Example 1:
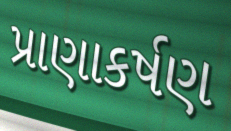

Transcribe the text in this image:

પ્રાણાકર્ષણ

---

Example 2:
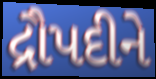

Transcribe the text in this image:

દ્રૌપદીને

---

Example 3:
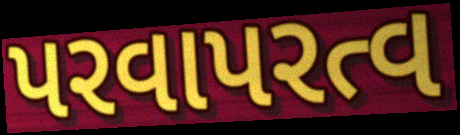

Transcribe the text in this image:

પરવાપરત્વ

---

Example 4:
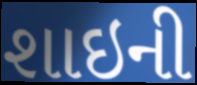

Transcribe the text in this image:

શાઇની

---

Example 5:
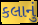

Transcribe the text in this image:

કલાનું